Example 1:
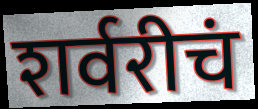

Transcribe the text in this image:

शर्वरीचं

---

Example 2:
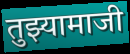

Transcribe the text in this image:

तुझ्यामाजी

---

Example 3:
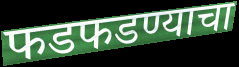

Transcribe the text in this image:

फडफडण्याचा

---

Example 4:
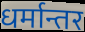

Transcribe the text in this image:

धर्मान्तर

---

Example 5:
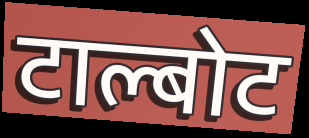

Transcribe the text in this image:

टाल्बोट